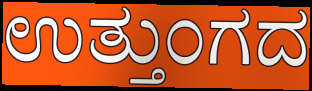
ಉತ್ತುಂಗದ